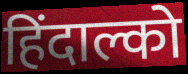
हिंदाल्को